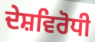
ਦੇਸ਼ਵਿਰੋਧੀ